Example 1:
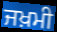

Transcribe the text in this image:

ਜਖ਼ਮੀ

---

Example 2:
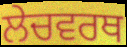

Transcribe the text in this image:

ਲੇਚਵਰਥ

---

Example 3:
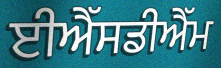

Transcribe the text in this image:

ਈਐੱਸਡੀਐੱਮ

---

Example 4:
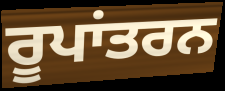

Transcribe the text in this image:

ਰੂਪਾਂਤਰਨ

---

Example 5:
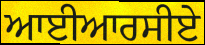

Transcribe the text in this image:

ਆਈਆਰਸੀਏ